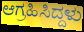
ಆಗ್ರಹಿಸಿದ್ದಳು